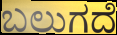
ಬಲುಗದೆ